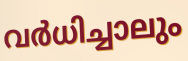
വർധിച്ചാലും